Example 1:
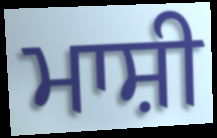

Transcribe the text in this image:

ਮਾਸ਼ੀ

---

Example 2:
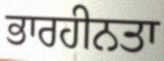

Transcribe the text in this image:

ਭਾਰਹੀਨਤਾ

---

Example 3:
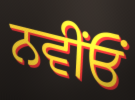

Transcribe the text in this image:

ਨਵੀਂਓਂ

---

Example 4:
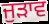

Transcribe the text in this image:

ਜੁੜਾਵ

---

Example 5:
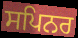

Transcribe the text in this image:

ਸਪਿਨਰ